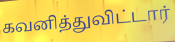
கவனித்துவிட்டார்